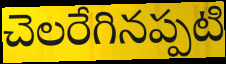
చెలరేగినప్పటి